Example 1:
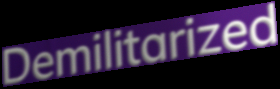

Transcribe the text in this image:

Demilitarized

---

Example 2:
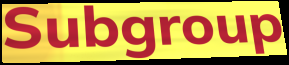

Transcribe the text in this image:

Subgroup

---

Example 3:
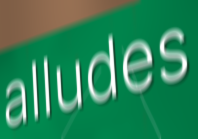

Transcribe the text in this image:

alludes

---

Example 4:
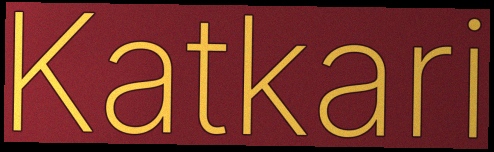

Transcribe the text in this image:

Katkari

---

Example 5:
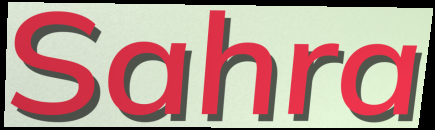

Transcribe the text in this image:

Sahra